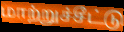
மாற்றுச்சீட்டு